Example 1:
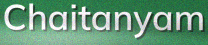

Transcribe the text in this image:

Chaitanyam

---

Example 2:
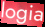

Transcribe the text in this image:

logia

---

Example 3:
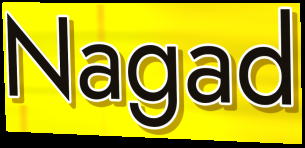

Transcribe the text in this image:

Nagad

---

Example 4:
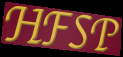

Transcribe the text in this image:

HFSP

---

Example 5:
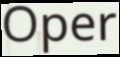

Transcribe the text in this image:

Oper